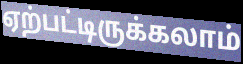
ஏற்பட்டிருக்கலாம்